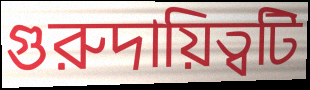
গুরুদায়িত্বটি